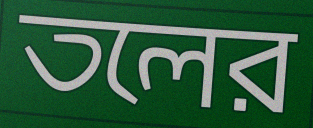
তলের